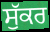
ਸੁੱਕਰ